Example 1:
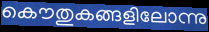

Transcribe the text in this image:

കൌതുകങ്ങളിലോന്നു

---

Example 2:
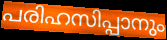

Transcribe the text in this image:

പരിഹസിപ്പാനും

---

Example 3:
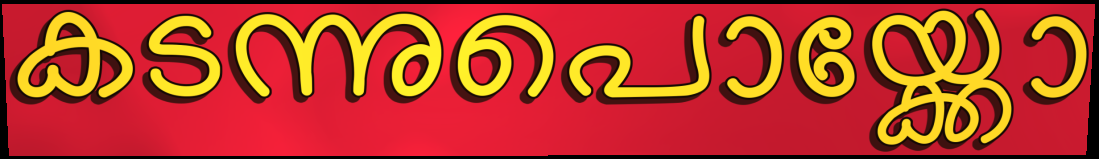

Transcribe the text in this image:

കടന്നുപൊയ്ക്കോ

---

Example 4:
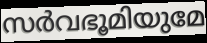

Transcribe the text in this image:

സർവഭൂമിയുമേ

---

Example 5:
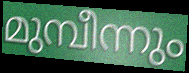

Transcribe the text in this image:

മുമ്പീന്നും